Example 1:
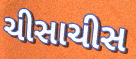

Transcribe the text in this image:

ચીસાચીસ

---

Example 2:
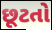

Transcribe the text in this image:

છૂટતો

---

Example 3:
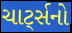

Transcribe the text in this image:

ચાર્ટ્સનો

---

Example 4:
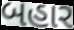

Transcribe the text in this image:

બહાર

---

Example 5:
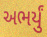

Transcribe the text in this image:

અભર્યું